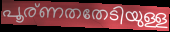
പൂര്ണതതേടിയുള്ള